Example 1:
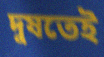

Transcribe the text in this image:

দুষতেই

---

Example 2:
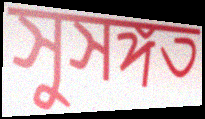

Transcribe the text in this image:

সুসঙ্গত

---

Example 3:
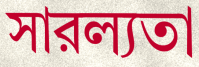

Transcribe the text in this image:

সারল্যতা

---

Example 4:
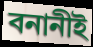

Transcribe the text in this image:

বনানীই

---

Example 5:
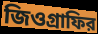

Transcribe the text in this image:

জিওগ্রাফির